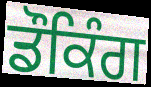
ਡੌਕਿੰਗ